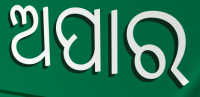
ଅପାର